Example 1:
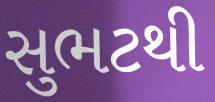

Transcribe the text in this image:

સુભટથી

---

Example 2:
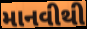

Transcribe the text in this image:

માનવીથી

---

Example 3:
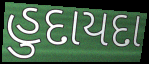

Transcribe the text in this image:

હુદાયદા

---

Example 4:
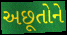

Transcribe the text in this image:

અછૂતોને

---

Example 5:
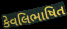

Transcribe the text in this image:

કેવલિભાષિત